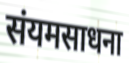
संयमसाधना